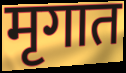
मृगात